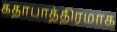
கதாபாத்திரமாக